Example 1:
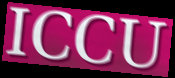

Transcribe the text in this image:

ICCU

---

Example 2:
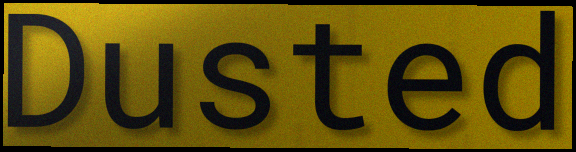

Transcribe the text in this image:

Dusted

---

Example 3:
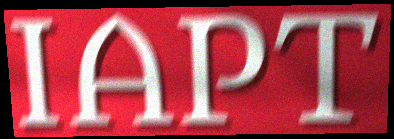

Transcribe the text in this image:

IAPT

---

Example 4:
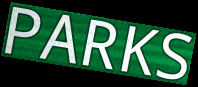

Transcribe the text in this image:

PARKS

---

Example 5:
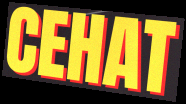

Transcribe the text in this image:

CEHAT